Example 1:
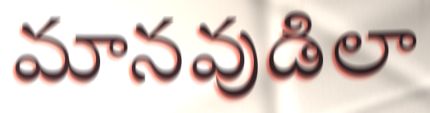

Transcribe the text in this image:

మానవుడిలా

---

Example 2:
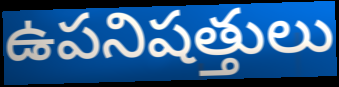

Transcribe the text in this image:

ఉపనిషత్తులు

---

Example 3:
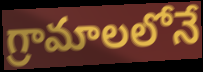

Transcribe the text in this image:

గ్రామాలలోనే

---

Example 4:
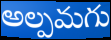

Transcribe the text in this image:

అల్పమగు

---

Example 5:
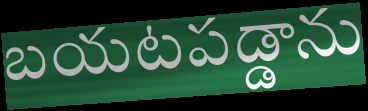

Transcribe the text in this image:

బయటపడ్డాను